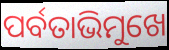
ପର୍ବତାଭିମୁଖେ